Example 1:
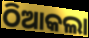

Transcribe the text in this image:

ଠିଆକଲା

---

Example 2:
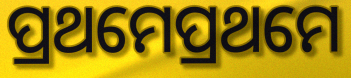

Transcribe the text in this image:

ପ୍ରଥମେପ୍ରଥମେ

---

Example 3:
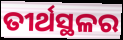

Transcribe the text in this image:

ତୀର୍ଥସ୍ଥଳର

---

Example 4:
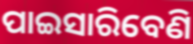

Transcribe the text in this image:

ପାଇସାରିବେଣି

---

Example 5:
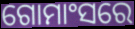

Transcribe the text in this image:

ଗୋମାଂସରେ